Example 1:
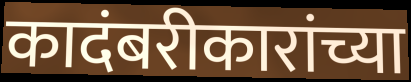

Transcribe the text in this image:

कादंबरीकारांच्या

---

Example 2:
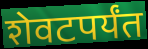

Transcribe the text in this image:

शेवटपर्यंत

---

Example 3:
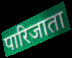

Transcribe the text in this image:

पारिजाता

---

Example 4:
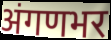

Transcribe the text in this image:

अंगणभर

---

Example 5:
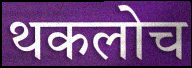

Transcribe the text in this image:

थकलोच